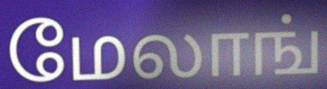
மேலாங்